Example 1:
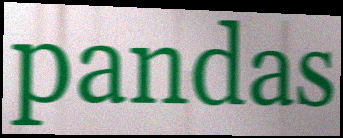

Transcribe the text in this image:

pandas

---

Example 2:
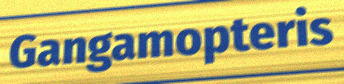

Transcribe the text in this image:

Gangamopteris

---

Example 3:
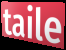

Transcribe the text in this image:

taile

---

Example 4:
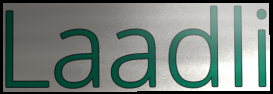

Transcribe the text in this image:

Laadli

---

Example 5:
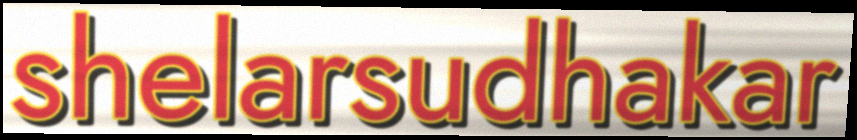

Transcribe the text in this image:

shelarsudhakar